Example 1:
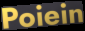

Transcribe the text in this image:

Poiein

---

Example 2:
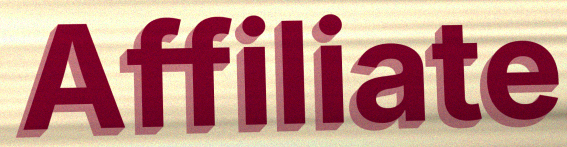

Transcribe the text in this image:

Affiliate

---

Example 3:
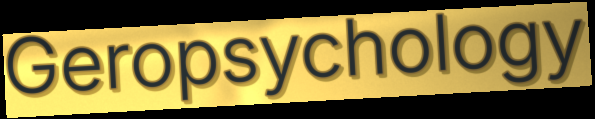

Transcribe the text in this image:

Geropsychology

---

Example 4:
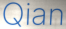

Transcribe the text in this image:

Qian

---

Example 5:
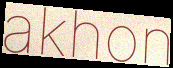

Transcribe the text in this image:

akhon